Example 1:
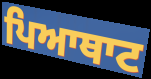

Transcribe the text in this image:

ਪਿਆਥਾਟ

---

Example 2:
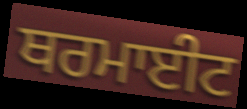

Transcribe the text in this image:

ਥਰਮਾਈਟ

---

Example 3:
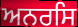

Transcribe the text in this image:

ਅਨਰਸਿ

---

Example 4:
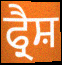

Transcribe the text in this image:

ਫ੍ਰੈਸ਼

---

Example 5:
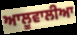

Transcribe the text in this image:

ਆਲੂਵਾਲੀਆ